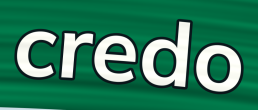
credo